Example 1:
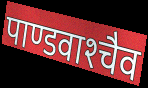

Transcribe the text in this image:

पाण्डवाश्चैव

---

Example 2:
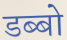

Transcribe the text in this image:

डब्बो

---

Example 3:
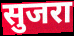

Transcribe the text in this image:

सुजरा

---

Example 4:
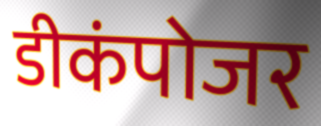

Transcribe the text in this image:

डीकंपोजर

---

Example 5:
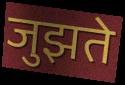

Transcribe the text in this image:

जुझते